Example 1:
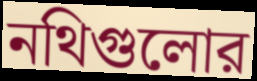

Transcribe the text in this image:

নথিগুলোর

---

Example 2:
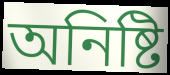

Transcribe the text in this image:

অনিষ্টি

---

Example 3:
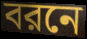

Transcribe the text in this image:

বরনে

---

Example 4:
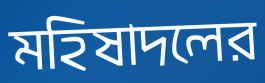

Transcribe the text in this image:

মহিষাদলের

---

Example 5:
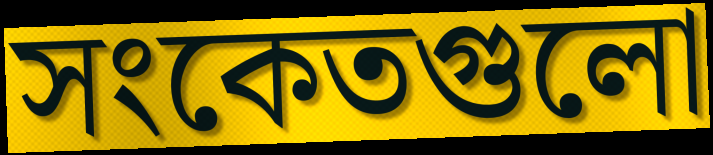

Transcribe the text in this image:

সংকেতগুলো